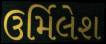
ઉર્મિલેશ